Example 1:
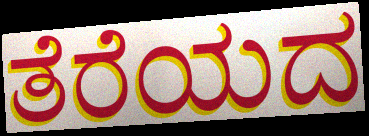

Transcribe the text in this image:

ತೆರೆಯದ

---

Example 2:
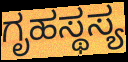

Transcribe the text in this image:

ಗೃಹಸ್ಥಸ್ಯ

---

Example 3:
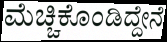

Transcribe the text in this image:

ಮೆಚ್ಚಿಕೊಂಡಿದ್ದೇನೆ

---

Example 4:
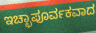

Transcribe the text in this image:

ಇಚ್ಛಾಪೂರ್ವಕವಾದ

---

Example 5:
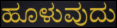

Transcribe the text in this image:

ಹೂಳುವುದು